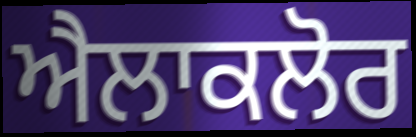
ਐਲਾਕਲੋਰ